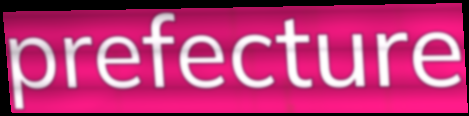
prefecture